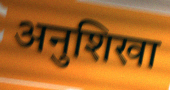
अनुशिखा